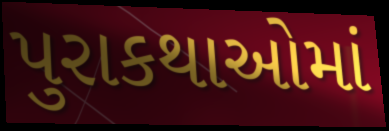
પુરાકથાઓમાં